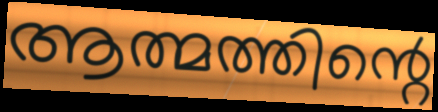
ആത്മത്തിന്റെ